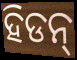
ହିଡନ୍